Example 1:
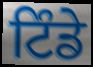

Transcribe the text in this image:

ਟਿੰਡੇ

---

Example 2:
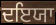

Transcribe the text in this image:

ਦਇਯਾ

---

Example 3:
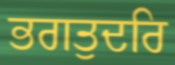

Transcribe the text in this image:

ਭਗਤੁਦਰਿ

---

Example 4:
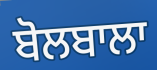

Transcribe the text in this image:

ਬੋਲਬਾਲਾ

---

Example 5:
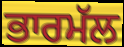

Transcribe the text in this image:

ਭਾਰਮੱਲ